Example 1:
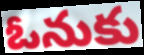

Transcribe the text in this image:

ఓనుకు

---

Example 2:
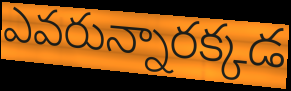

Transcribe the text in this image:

ఎవరున్నారక్కడ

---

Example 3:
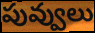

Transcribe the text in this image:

పువ్వులు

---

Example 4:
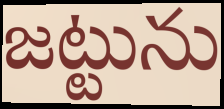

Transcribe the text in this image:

జట్టును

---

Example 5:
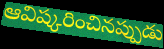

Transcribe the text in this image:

ఆవిష్కరించినప్పుడు